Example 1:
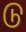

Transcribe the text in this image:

டு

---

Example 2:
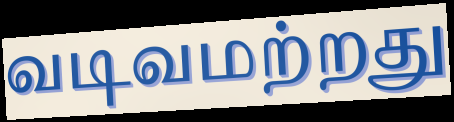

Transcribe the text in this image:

வடிவமற்றது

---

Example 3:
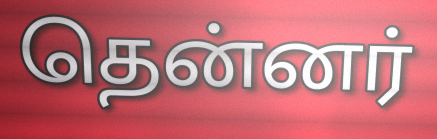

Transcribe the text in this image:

தென்னர்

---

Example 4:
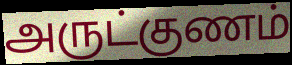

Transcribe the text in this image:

அருட்குணம்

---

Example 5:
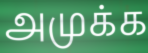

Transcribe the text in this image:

அமுக்க